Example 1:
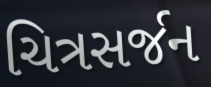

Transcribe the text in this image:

ચિત્રસર્જન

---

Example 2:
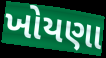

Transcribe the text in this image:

ખોયણા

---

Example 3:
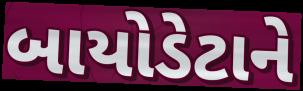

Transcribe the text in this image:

બાયોડેટાને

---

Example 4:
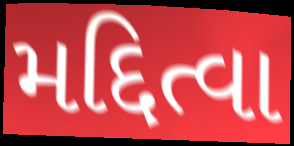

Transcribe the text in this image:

મદ્દિત્વા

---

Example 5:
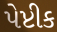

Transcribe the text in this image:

પેપ્ટીક